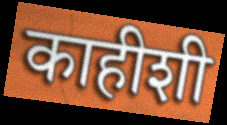
काहीशी